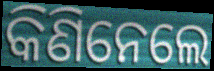
କିଣିନେଲେ